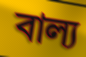
বাল্য